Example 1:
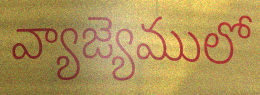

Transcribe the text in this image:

వ్యాజ్యెములో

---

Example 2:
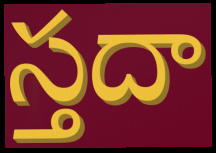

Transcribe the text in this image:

స్తదా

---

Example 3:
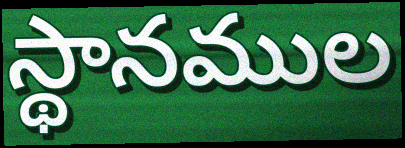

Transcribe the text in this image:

స్థానముల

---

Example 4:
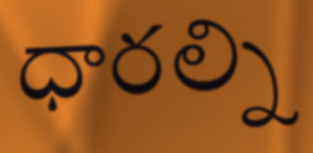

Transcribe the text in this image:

ధారల్ని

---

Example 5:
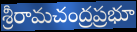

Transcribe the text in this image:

శ్రీరామచంద్రప్రభూ